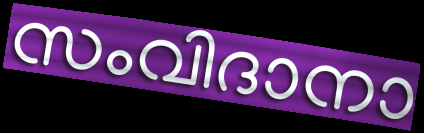
സംവിദാനാ